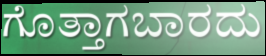
ಗೊತ್ತಾಗಬಾರದು